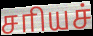
சரியச்